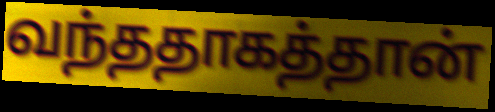
வந்ததாகத்தான்